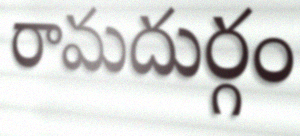
రామదుర్గం